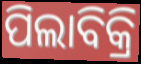
ପିଲାବିକ୍ରି